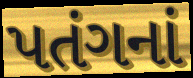
પતંગનાં